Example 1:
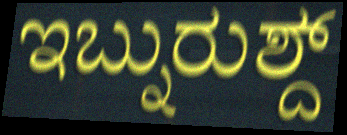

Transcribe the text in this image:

ಇಬ್ನುರುಶ್ದ್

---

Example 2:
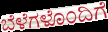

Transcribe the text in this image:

ಬೆಳೆಗಳೊಂದಿಗೆ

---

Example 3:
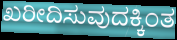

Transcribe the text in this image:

ಖರೀದಿಸುವುದಕ್ಕಿಂತ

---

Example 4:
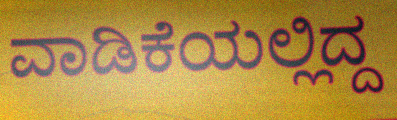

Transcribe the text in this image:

ವಾಡಿಕೆಯಲ್ಲಿದ್ದ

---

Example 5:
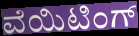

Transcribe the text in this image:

ವೆಯಿಟಿಂಗ್